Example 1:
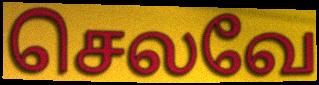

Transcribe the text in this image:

செலவே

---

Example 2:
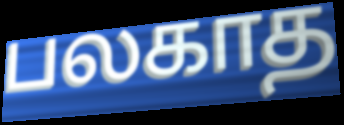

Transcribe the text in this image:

பலகாத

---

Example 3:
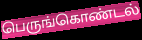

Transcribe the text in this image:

பெருங்கொண்டல்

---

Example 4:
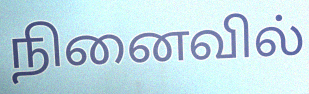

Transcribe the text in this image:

நினைவில்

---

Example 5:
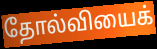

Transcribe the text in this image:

தோல்வியைக்